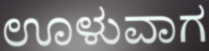
ಊಳುವಾಗ